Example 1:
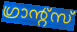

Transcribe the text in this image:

ഗ്രാന്റ്സ്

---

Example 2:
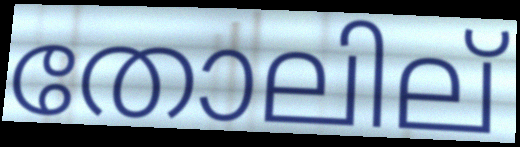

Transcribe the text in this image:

തോലില്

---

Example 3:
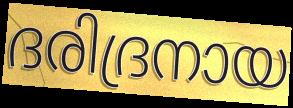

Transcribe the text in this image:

ദരിദ്രനായ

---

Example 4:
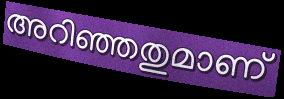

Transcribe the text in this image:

അറിഞ്ഞതുമാണ്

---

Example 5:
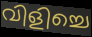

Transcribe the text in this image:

വിളിച്ചെ